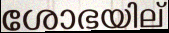
ശോഭയില്